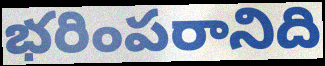
భరింపరానిది